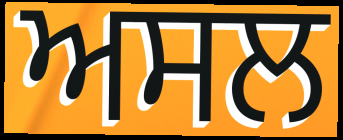
ਅਸਲ